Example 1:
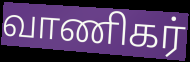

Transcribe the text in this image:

வாணிகர்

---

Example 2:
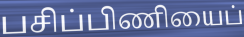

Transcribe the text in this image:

பசிப்பிணியைப்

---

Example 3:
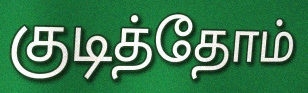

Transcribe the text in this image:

குடித்தோம்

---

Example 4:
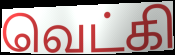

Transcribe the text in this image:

வெட்கி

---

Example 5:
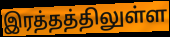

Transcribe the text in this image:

இரத்தத்திலுள்ள